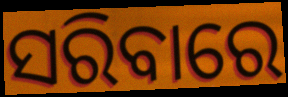
ସରିବାରେ